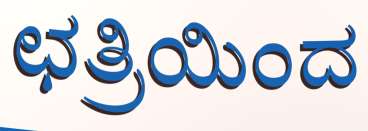
ಛತ್ರಿಯಿಂದ